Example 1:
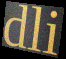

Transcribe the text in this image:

dli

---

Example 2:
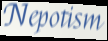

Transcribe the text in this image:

Nepotism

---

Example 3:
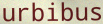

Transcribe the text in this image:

urbibus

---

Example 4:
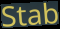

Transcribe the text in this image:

Stab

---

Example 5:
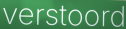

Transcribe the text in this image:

verstoord